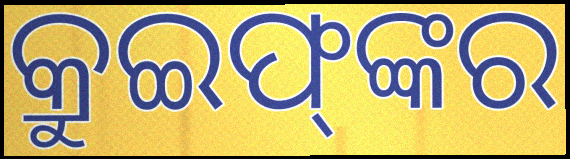
କ୍ରୁଇଫ୍‌ଙ୍କର